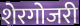
शेरगोजरी